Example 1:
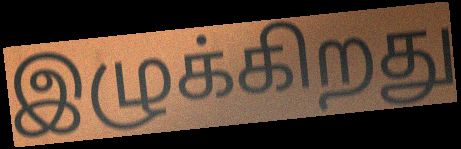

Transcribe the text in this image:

இழுக்கிறது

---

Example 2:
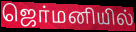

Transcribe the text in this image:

ஜெர்மனியில்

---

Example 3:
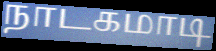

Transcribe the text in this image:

நாடகமாடி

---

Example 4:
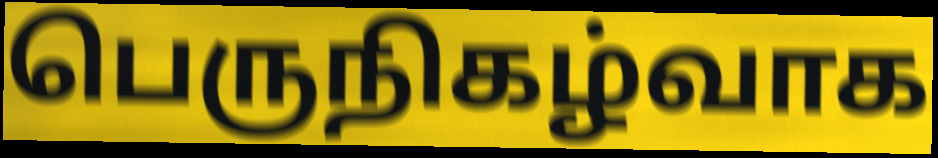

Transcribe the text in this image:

பெருநிகழ்வாக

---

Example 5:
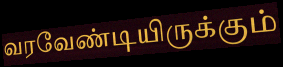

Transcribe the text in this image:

வரவேண்டியிருக்கும்